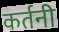
कर्तनी